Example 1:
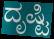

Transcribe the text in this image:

ದೃಷ್ಟಿ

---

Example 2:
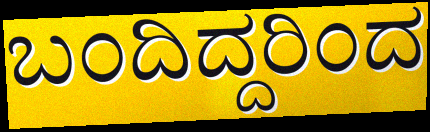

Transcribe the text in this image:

ಬಂದಿದ್ದರಿಂದ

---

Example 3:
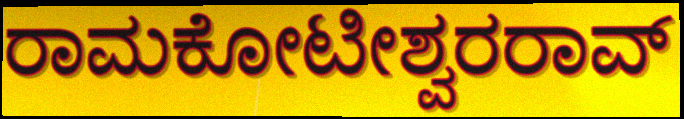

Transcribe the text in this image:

ರಾಮಕೋಟೀಶ್ವರರಾವ್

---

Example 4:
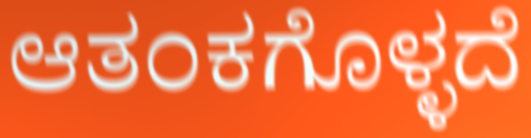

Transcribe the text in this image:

ಆತಂಕಗೊಳ್ಳದೆ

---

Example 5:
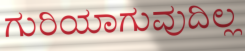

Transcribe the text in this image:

ಗುರಿಯಾಗುವುದಿಲ್ಲ